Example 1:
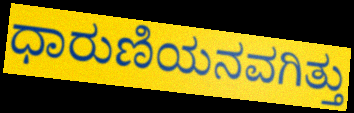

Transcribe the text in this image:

ಧಾರುಣಿಯನವಗಿತ್ತು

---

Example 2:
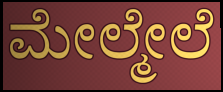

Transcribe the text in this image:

ಮೇಲ್ಮೇಲೆ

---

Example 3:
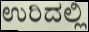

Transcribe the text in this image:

ಉರಿದಲ್ಲಿ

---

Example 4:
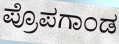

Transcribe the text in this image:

ಪ್ರೊಪಗಾಂಡ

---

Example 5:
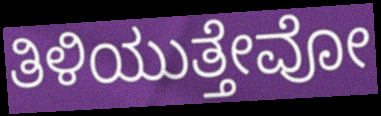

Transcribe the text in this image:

ತಿಳಿಯುತ್ತೇವೋ